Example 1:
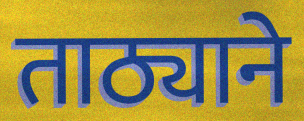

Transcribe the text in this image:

ताठ्याने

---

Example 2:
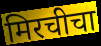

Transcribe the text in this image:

मिरचीचा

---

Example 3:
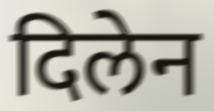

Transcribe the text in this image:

दिलेन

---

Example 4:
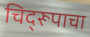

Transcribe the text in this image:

चिद्‌रूपाचा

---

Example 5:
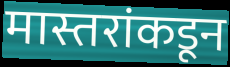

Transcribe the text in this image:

मास्तरांकडून